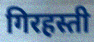
गिरहस्ती